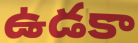
ఉడకా